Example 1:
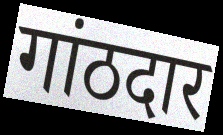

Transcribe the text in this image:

गांठदार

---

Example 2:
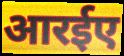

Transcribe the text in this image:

आरईए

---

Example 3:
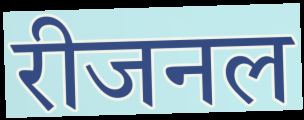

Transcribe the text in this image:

रीजनल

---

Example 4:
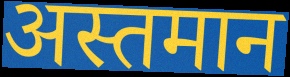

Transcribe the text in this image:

अस्तमान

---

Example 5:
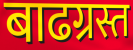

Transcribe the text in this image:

बाढग्रस्त